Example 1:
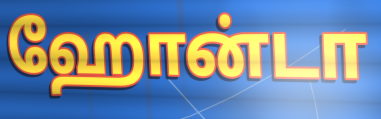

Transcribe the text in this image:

ஹோன்டா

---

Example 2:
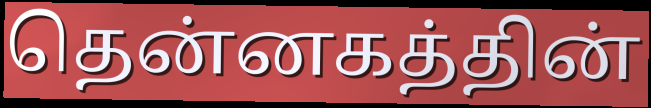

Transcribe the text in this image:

தென்னகத்தின்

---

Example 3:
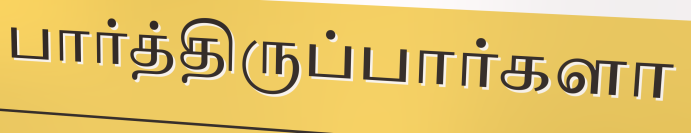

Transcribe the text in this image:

பார்த்திருப்பார்களா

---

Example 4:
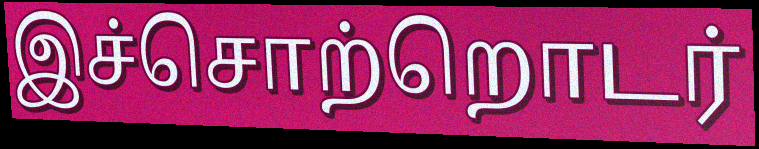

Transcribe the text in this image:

இச்சொற்றொடர்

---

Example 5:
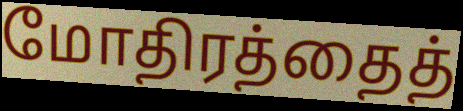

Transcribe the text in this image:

மோதிரத்தைத்